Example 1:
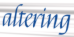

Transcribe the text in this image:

altering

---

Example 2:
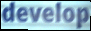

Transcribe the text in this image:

develop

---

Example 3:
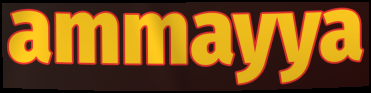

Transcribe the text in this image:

ammayya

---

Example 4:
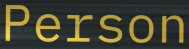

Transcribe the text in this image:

Person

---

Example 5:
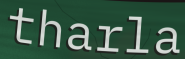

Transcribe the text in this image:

tharla